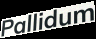
Pallidum